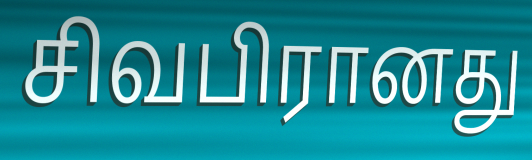
சிவபிரானது